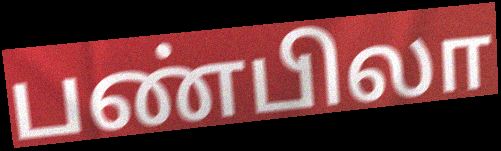
பண்பிலா